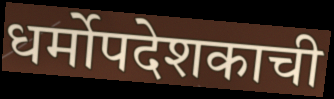
धर्मोपदेशकाची